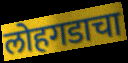
लोहगडाचा